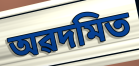
অৱদমিত